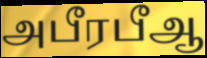
அபீரபீஆ